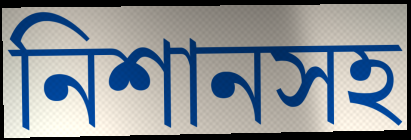
নিশানসহ